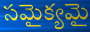
సమైక్యమై